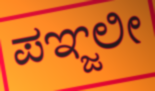
ಪಞ್ಜಲೀ